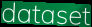
dataset